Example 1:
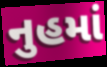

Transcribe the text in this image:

નુહમાં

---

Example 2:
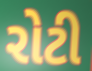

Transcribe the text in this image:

રોટી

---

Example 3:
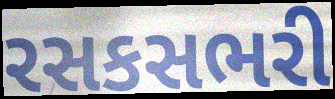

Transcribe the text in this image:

રસકસભરી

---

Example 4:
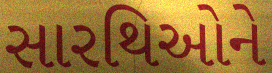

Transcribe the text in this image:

સારથિઓને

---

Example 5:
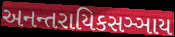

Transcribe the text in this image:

અનન્તરાયિકસઞ્ઞાય